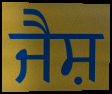
ਜੈਸ਼